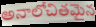
అనాలోచితమైన